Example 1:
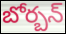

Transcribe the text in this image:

బోర్బన్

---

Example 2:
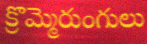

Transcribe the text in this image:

క్రొమ్మెరుంగులు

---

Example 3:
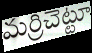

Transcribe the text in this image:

మర్రిచెట్టూ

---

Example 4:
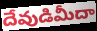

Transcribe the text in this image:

దేవుడిమీదా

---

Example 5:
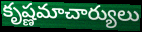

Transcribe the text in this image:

కృష్ణమాచార్యులు